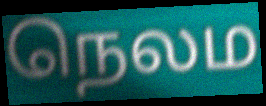
நெலம